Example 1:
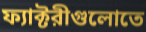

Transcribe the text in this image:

ফ্যাক্টরীগুলোতে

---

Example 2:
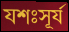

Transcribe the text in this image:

যশঃসূর্য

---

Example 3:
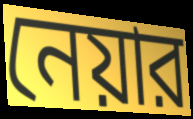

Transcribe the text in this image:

নেয়ার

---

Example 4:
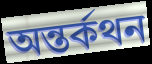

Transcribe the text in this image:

অন্তর্কথন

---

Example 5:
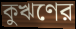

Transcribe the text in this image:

কুঋণের